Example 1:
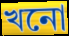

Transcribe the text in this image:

খনো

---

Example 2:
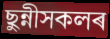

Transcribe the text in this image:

ছুন্নীসকলৰ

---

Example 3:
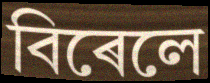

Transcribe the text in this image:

বিৰেলে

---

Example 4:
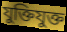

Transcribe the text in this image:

যুক্তিযুক্ত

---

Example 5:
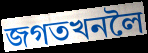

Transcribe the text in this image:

জগতখনলৈ